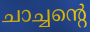
ചാച്ചന്റെ